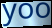
yoo